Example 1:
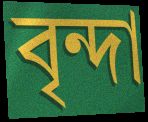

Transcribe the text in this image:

বৃন্দা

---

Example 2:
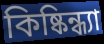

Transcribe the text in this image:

কিষ্কিন্ধ্যা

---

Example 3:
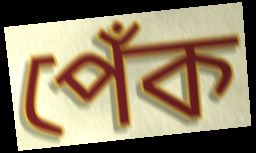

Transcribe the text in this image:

পেঁক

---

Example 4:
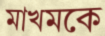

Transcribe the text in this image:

মাখমকে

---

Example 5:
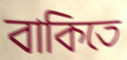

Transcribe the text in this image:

বাকিতে